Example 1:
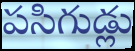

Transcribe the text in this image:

పసిగుడ్లు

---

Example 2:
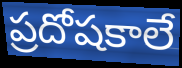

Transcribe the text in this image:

ప్రదోషకాలే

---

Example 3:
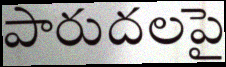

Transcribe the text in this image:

పారుదలపై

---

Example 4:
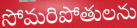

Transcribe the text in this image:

సోమరిపోతులను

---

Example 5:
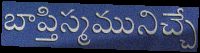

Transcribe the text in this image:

బాప్తిస్మమునిచ్చే